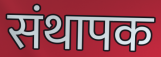
संथापक